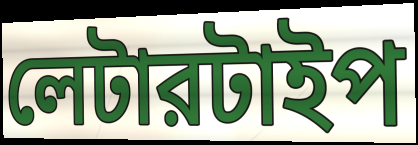
লেটারটাইপ